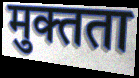
मुक्तता